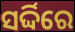
ସର୍ଦ୍ଦିରେ